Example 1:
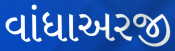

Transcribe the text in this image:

વાંધાઅરજી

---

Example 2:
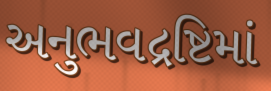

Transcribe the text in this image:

અનુભવદ્રષ્ટિમાં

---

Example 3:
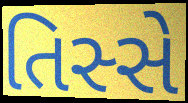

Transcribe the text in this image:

તિસ્સે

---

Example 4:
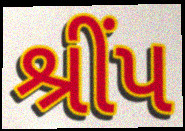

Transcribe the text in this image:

શ્રીંપ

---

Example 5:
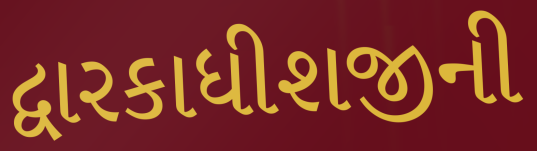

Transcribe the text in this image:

દ્વારકાધીશજીની